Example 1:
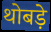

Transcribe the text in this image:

थोबड़े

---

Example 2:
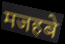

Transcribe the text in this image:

मजहबे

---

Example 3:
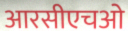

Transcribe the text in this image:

आरसीएचओ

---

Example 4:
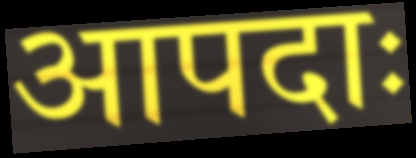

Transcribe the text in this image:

आपदाः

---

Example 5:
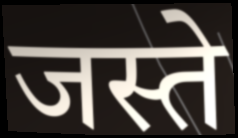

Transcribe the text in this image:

जस्ते